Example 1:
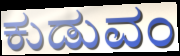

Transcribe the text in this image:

ಕುಡುವಂ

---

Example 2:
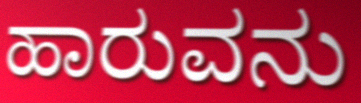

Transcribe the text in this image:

ಹಾರುವನು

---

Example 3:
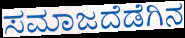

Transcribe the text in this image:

ಸಮಾಜದೆಡೆಗಿನ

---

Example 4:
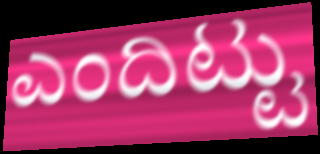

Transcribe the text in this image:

ಎಂದಿಟ್ಟು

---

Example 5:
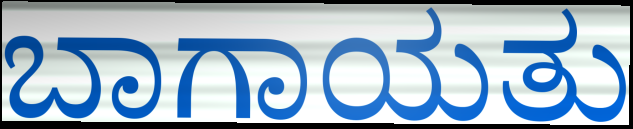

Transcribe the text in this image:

ಬಾಗಾಯತು